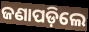
ଜଣାପଡ଼ିଲେ